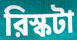
রিস্কটা